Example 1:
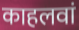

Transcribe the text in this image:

काहलवां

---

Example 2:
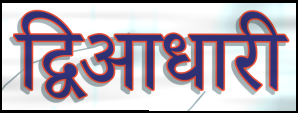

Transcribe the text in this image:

द्विआधारी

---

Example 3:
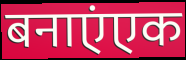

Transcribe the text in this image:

बनाएंएक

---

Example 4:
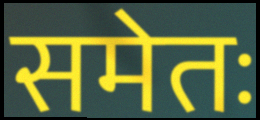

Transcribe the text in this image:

समेतः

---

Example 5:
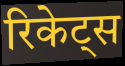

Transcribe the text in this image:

रिकेट्स